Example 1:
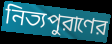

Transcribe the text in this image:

নিত্যপুরাণের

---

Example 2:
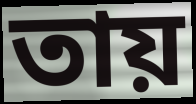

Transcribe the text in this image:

তায়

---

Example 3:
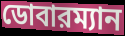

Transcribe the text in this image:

ডোবারম্যান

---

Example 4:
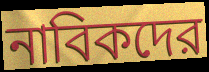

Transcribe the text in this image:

নাবিকদের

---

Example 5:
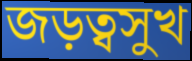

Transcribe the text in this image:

জড়ত্বসুখ